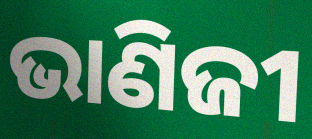
ଭାଣିଜୀ